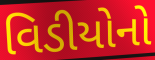
વિડીયોનો